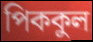
পিককুল